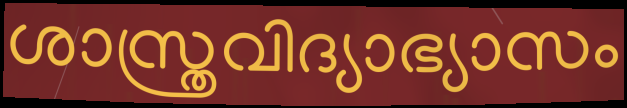
ശാസ്ത്രവിദ്യാഭ്യാസം